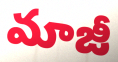
మాజీ